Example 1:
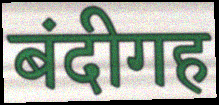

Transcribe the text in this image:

बंदीगह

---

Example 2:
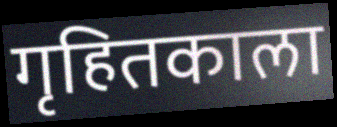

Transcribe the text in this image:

गृहितकाला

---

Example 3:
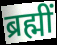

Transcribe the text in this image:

ब्रह्मीं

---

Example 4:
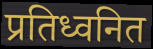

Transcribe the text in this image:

प्रतिध्वनित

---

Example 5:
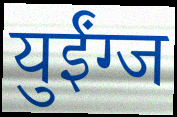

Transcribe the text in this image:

युईंग्ज